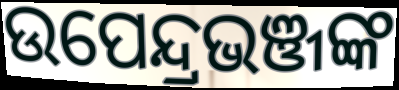
ଉପେନ୍ଦ୍ରଭଞ୍ଜଙ୍କ